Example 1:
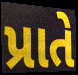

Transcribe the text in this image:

પ્રાતે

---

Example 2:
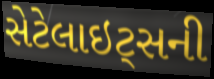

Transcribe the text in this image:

સેટેલાઇટ્સની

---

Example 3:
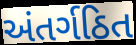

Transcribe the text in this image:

અંતર્ગઠિત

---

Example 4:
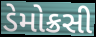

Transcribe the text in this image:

ડેમોક્રસી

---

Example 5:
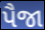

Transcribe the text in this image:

પૈજા